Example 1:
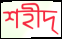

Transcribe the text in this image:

শহীদ্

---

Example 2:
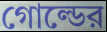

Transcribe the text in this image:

গোল্ডের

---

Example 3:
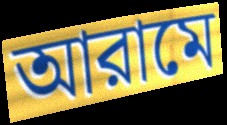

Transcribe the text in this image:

আরামে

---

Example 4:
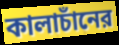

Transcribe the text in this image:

কালাচাঁনের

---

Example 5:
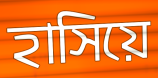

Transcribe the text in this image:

হাসিয়ে